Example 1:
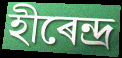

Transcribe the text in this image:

হীৰেন্দ্ৰ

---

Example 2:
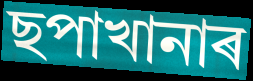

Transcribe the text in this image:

ছপাখানাৰ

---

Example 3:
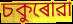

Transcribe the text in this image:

চকুৰোৱা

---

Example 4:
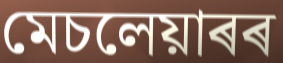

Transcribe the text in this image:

মেচলেয়াৰৰ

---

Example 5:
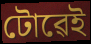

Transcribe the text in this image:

টোৱেই